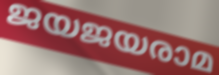
ജയജയരാമ